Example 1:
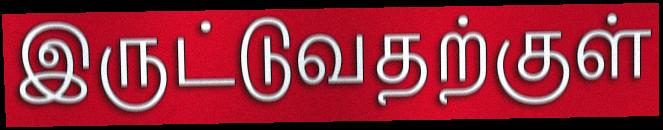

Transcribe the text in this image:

இருட்டுவதற்குள்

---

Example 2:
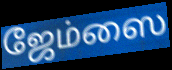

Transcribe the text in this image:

ஜேம்ஸை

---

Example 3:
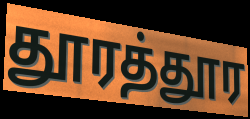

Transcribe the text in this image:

தூரத்தூர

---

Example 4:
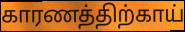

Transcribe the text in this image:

காரணத்திற்காய்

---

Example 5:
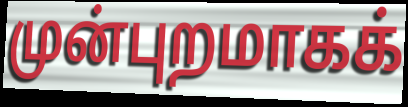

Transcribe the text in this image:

முன்புறமாகக்